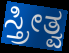
ಸ್ತ್ರೀತ್ವ